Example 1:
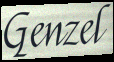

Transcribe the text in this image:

Genzel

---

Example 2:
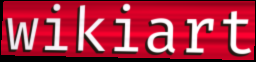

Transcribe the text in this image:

wikiart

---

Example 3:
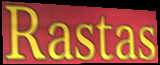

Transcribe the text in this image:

Rastas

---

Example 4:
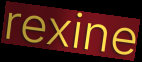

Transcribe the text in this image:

rexine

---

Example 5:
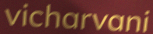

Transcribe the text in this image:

vicharvani